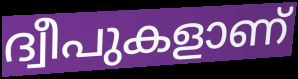
ദ്വീപുകളാണ്